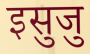
इसुजु